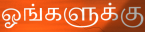
ஓங்களுக்கு